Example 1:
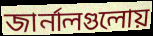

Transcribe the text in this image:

জার্নালগুলোয়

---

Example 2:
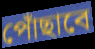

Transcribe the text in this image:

পোঁছাবে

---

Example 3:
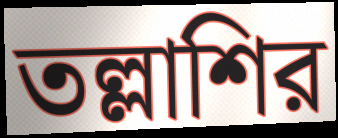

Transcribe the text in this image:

তল্লাশির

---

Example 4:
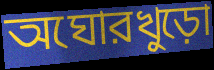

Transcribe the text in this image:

অঘোরখুড়ো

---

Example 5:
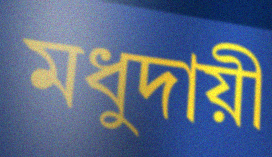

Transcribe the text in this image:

মধুদায়ী